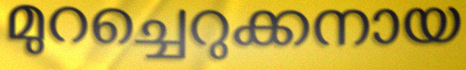
മുറച്ചെറുക്കനായ